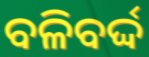
ବଳିବର୍ଦ୍ଦ